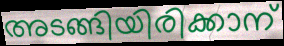
അടങ്ങിയിരിക്കാന്